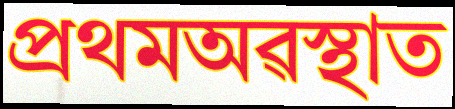
প্ৰথমঅৱস্থাত